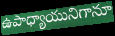
ఉపాధ్యాయునిగానూ